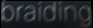
braiding